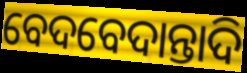
ବେଦବେଦାନ୍ତାଦି